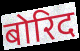
बोरिद